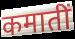
कमातीं